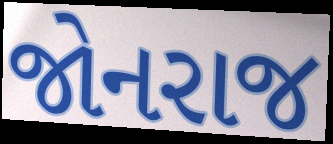
જોનરાજ